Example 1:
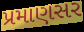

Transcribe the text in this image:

પ્રમાણસર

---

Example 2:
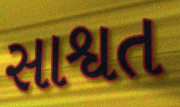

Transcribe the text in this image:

સાશ્વત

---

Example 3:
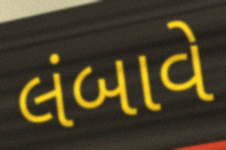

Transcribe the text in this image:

લંબાવે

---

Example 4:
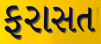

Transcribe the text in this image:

ફરાસત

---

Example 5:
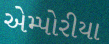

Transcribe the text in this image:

એમ્પોરીયા